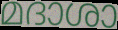
മദാശാ